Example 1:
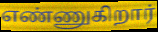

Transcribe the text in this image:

எண்ணுகிறார்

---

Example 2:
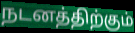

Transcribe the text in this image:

நடனத்திற்கும்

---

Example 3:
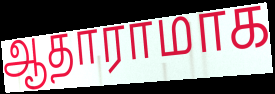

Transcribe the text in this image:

ஆதாராமாக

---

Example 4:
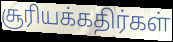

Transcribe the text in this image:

சூரியக்கதிர்கள்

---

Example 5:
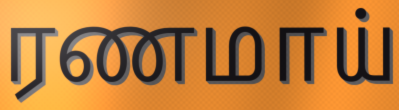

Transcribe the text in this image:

ரணமாய்